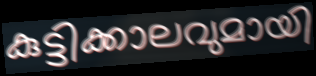
കുട്ടിക്കാലവുമായി